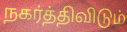
நகர்த்திவிடும்